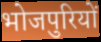
भोजपुरियों